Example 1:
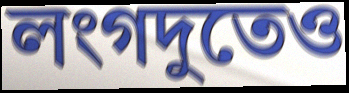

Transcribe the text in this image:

লংগদুতেও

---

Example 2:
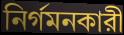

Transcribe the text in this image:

নির্গমনকারী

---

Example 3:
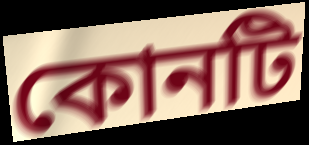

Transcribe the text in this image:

কোনটি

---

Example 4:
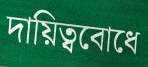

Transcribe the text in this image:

দায়িত্ববোধে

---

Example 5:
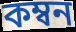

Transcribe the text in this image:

কম্বন